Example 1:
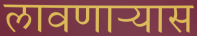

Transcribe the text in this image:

लावणाऱ्यास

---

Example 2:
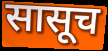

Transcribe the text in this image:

सासूच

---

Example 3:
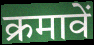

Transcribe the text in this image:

क्रमावें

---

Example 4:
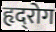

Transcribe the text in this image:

हृद्‍रोग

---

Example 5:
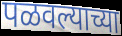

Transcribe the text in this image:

पळवल्याच्या